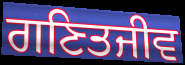
ਗਣਿਤਜੀਵ